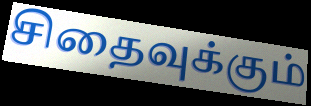
சிதைவுக்கும்